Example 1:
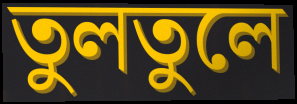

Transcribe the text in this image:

তুলতুলে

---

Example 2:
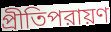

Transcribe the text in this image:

প্রীতিপরায়ণ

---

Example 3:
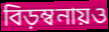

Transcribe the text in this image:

বিড়ম্বনায়ও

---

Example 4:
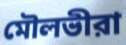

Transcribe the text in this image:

মৌলভীরা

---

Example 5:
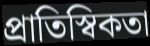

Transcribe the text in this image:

প্রাতিস্বিকতা